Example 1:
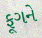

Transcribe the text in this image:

ફૂગને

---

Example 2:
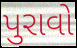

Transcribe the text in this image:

પુરાવો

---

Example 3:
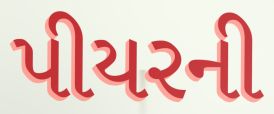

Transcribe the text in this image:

પીયરની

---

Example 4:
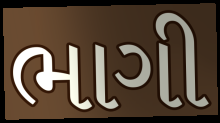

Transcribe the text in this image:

ભાગી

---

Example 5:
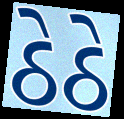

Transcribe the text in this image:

ઠેઠે